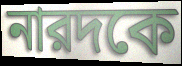
নারদকে